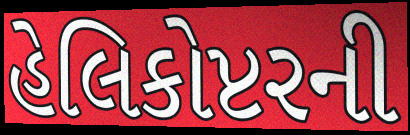
હેલિકોપ્ટરની